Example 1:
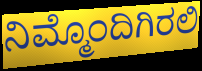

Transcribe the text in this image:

ನಿಮ್ಮೊಂದಿಗಿರಲಿ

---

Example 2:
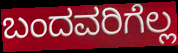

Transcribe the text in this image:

ಬಂದವರಿಗೆಲ್ಲ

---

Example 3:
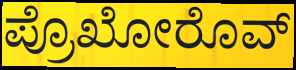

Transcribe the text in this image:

ಪ್ರೊಖೋರೊವ್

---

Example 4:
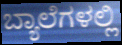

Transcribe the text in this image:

ಬ್ಯಾಲೆಗಳಲ್ಲಿ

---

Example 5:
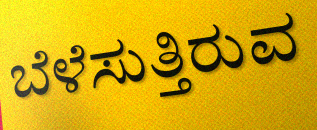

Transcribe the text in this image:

ಬೆಳೆಸುತ್ತಿರುವ